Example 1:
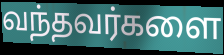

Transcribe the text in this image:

வந்தவர்களை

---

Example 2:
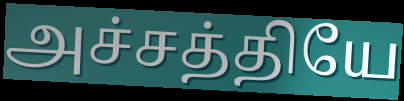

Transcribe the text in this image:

அச்சத்தியே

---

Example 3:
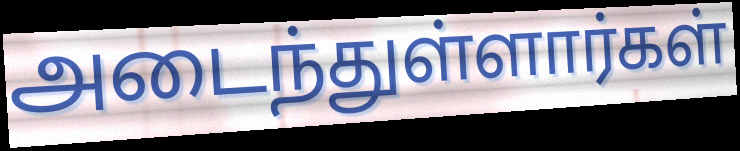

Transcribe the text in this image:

அடைந்துள்ளார்கள்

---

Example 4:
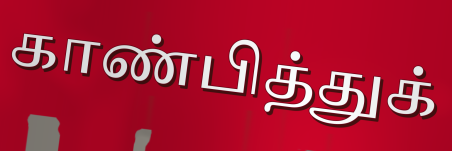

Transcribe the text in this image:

காண்பித்துக்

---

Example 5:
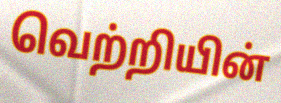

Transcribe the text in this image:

வெற்றியின்